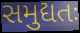
સમુદ્યતઃ